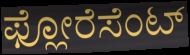
ಫ್ಲೋರೆಸೆಂಟ್